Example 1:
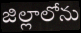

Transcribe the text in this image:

జిల్లాలోను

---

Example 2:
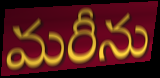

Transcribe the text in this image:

మరీను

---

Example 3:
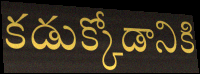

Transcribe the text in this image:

కడుక్కోడానికి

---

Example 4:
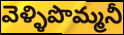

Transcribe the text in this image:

వెళ్ళిపొమ్మనీ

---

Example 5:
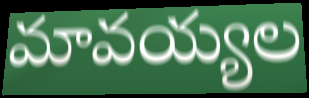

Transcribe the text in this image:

మావయ్యల